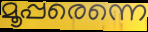
മൂപ്പരെന്നെ